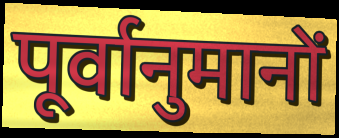
पूर्वानुमानों